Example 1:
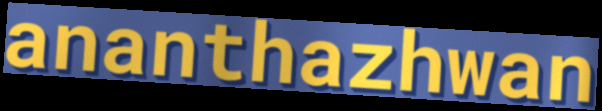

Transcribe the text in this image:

ananthazhwan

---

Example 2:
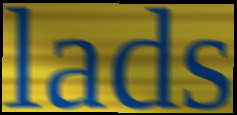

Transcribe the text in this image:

lads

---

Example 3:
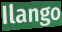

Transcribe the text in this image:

Ilango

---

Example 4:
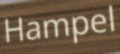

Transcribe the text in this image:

Hampel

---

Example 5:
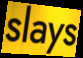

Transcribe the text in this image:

slays